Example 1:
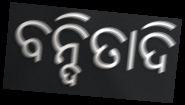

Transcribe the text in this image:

ବନ୍ଦିତାଦି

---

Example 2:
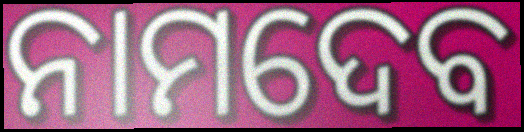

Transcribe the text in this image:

ନାମଦେବ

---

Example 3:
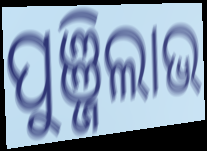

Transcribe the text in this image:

ପୁଞ୍ଜିଲାଭ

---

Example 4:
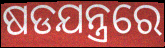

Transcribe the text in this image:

ଷଡଯନ୍ତ୍ରରେ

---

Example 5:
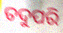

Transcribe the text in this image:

ତଦୁପରି